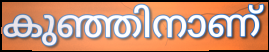
കുഞ്ഞിനാണ്